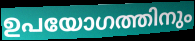
ഉപയോഗത്തിനും